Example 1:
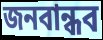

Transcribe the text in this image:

জনবান্ধব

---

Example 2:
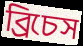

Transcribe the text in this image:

ব্রিচেস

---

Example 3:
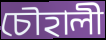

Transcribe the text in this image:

চৌহালী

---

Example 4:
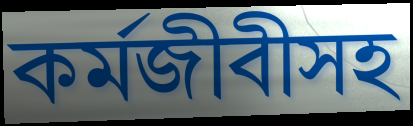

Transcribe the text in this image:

কর্মজীবীসহ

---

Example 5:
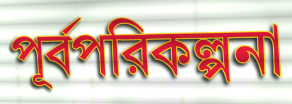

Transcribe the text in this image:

পূর্বপরিকল্পনা